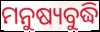
ମନୁଷ୍ୟବୁଦ୍ଧି